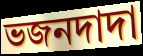
ভজনদাদা